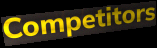
Competitors